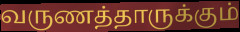
வருணத்தாருக்கும்